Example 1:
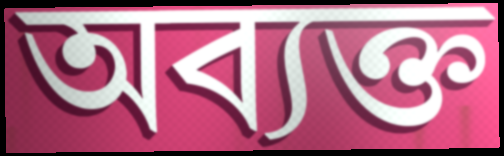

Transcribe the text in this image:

অব্যক্ত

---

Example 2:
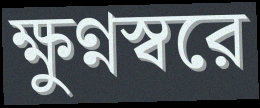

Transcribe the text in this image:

ক্ষুণ্নস্বরে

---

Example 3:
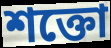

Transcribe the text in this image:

শক্তো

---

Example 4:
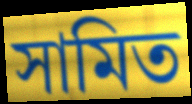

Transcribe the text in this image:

সামিত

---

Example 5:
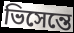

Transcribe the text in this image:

ভিসেন্তে